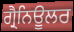
ਗ੍ਰੈਨਿਊਲਰ